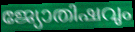
ജ്യോതിഷവും